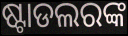
ଷ୍ଟାଡଲରଙ୍କ